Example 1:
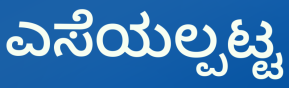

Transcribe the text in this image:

ಎಸೆಯಲ್ಪಟ್ಟ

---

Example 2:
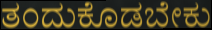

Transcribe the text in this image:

ತಂದುಕೊಡಬೇಕು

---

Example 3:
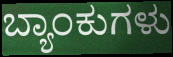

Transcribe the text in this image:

ಬ್ಯಾಂಕುಗಳು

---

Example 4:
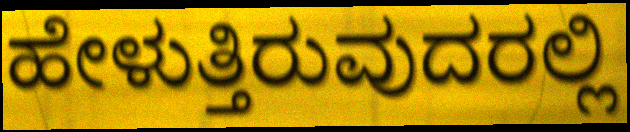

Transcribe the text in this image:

ಹೇಳುತ್ತಿರುವುದರಲ್ಲಿ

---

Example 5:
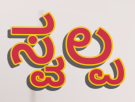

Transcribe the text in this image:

ಸ್ವಲ್ಪ